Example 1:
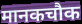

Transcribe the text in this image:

मानकचौक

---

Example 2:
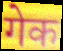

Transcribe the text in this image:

गेक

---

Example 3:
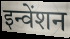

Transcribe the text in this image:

इन्वेंशन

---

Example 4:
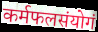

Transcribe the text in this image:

कर्मफलसंयोगं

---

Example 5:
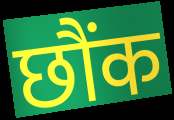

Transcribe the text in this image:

छौंक